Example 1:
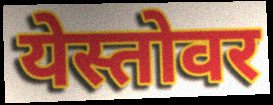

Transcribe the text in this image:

येस्तोवर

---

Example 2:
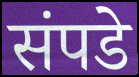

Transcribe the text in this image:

संपडे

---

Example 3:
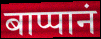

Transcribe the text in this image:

बाप्पानं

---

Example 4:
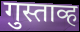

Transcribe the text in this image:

गुस्ताव्ह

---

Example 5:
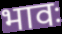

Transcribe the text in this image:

भावः